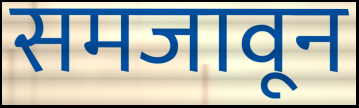
समजावून